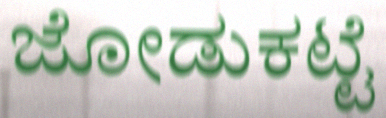
ಜೋಡುಕಟ್ಟೆ